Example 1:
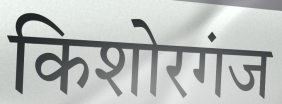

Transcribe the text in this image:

किशोरगंज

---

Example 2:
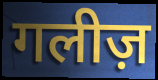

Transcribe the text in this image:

गलीज़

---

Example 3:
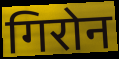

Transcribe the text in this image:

गिरोन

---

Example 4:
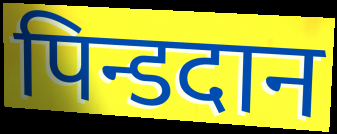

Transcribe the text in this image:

पिन्डदान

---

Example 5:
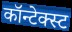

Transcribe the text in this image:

कॉन्टेक्स्ट